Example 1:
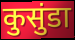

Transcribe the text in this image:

कुसुंडा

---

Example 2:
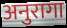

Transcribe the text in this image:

अनुरागा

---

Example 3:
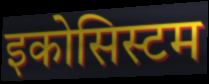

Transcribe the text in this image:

इकोसिस्टम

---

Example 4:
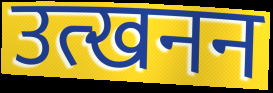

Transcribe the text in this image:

उत्‍खनन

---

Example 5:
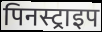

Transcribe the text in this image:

पिनस्ट्राइप